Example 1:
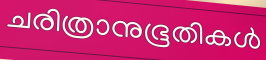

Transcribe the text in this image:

ചരിത്രാനുഭൂതികൾ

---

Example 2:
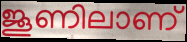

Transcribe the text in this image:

ജൂണിലാണ്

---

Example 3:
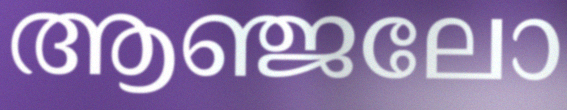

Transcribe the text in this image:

ആഞ്ജലോ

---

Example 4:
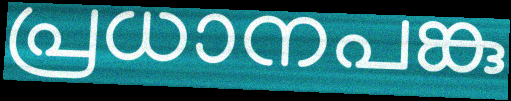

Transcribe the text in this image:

പ്രധാനപങ്കു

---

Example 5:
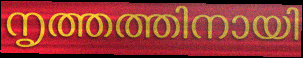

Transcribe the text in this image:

നൃത്തത്തിനായി